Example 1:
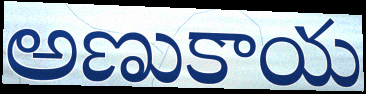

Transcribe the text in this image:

అణుకాయ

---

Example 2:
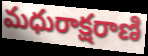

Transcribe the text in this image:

మధురాక్షరాణి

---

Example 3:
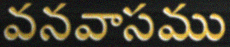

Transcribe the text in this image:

వనవాసము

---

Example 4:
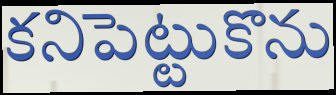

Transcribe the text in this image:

కనిపెట్టుకొను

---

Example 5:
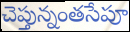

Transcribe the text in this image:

చెప్తున్నంతసేపూ